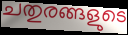
ചതുരങ്ങളുടെ